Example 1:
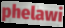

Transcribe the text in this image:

phelawi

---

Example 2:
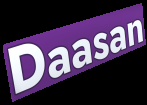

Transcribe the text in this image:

Daasan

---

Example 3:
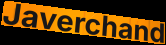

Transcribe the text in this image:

Javerchand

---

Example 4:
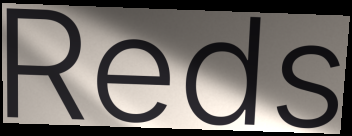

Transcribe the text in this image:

Reds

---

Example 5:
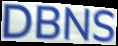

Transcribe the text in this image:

DBNS